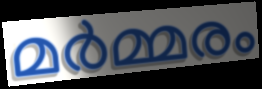
മർമ്മരം